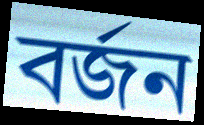
বৰ্জন